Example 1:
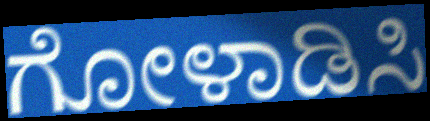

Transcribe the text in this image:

ಗೋಳಾಡಿಸಿ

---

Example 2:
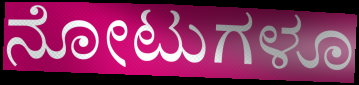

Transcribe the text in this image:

ನೋಟುಗಳೂ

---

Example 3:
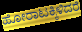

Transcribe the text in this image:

ಹೋರಾಟಕ್ಕಿಳಿದರೆ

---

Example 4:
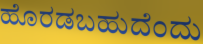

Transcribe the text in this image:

ಹೊರಡಬಹುದೆಂದು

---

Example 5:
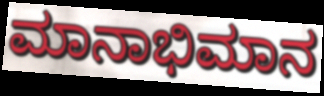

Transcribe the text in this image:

ಮಾನಾಭಿಮಾನ